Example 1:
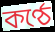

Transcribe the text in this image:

কণ্ঠে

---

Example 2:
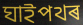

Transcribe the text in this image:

ঘাইপথৰ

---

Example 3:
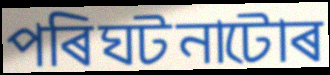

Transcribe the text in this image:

পৰিঘটনাটোৰ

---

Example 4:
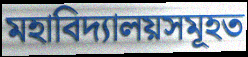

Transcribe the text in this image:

মহাবিদ্যালয়সমূহত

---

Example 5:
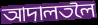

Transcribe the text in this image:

আদালতলৈ